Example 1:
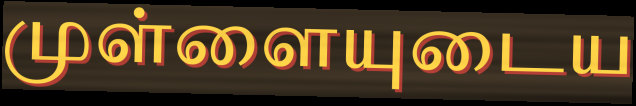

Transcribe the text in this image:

முள்ளையுடைய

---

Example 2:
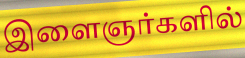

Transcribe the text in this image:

இளைஞர்களில்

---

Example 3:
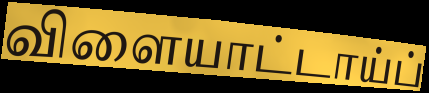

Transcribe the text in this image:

விளையாட்டாய்ப்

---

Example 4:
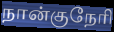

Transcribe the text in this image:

நான்குநேரி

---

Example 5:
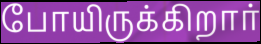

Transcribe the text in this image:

போயிருக்கிறார்